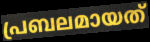
പ്രബലമായത്